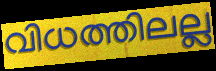
വിധത്തിലല്ല